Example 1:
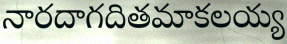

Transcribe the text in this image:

నారదాగదితమాకలయ్య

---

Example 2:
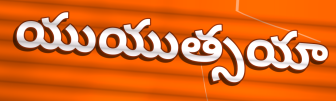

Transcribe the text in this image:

యుయుత్సయా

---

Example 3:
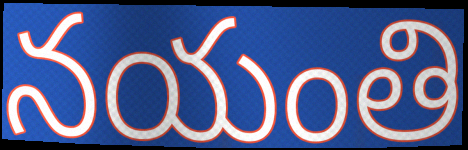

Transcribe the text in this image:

నయంతి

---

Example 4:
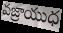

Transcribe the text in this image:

వజ్రాయుధ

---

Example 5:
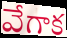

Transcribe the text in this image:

వేగాక